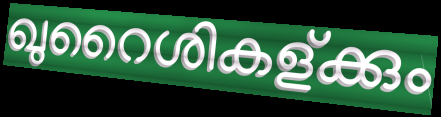
ഖുറൈശികള്ക്കും